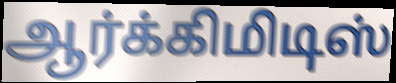
ஆர்க்கிமிடிஸ்